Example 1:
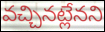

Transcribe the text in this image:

వచ్చినట్లేనని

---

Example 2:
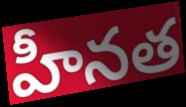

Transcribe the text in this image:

హీనత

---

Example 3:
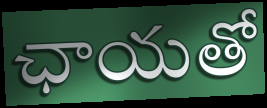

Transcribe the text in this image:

ఛాయతో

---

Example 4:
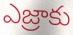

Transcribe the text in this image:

ఎజ్రాకు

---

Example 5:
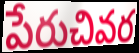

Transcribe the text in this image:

పేరుచివర